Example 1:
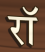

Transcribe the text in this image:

रॉ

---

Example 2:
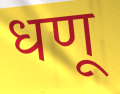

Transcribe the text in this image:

धणू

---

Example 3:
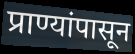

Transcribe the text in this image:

प्राण्यांपासून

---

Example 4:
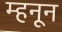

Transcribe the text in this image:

म्हनून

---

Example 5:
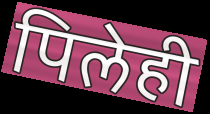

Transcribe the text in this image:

पिलेही